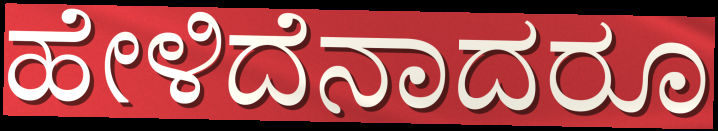
ಹೇಳಿದೆನಾದರೂ